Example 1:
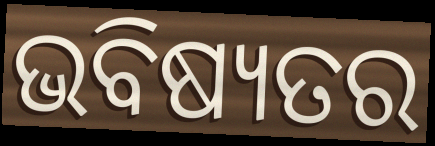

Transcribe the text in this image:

ଭବିଷ୍ୟତର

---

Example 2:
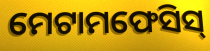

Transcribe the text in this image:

ମେଟାମଫେସିସ୍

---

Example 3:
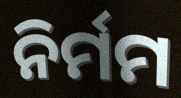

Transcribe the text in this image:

ନିର୍ମମ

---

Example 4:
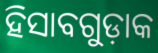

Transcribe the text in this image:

ହିସାବଗୁଡ଼ାକ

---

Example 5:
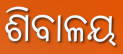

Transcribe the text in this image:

ଶିବାଳୟ